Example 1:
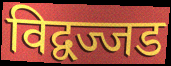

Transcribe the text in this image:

विद्वज्जड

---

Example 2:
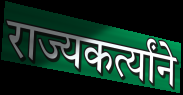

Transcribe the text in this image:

राज्यकर्त्यांने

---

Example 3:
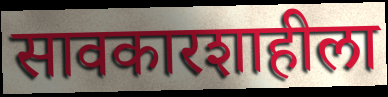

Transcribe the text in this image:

सावकारशाहीला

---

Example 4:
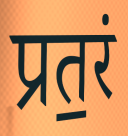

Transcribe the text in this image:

प्रत॒रं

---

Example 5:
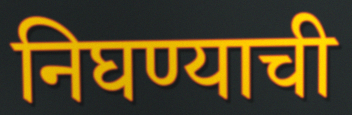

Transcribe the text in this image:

निघण्याची